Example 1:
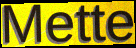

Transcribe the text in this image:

Mette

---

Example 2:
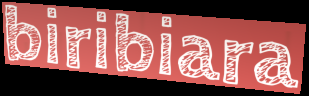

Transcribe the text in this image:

biribiara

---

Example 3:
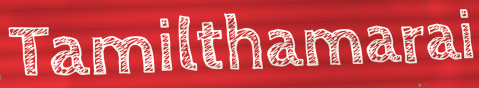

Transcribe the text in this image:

Tamilthamarai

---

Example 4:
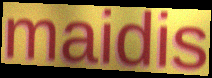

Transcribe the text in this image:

maidis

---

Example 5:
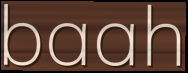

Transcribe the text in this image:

baah